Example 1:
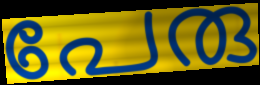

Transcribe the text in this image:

പേരു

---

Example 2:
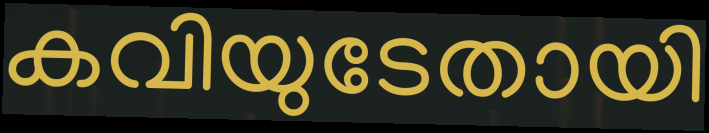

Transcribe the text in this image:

കവിയുടേതായി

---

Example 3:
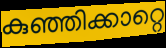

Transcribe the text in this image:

കുഞ്ഞിക്കാറ്റെ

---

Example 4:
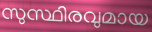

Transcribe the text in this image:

സുസ്ഥിരവുമായ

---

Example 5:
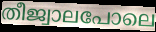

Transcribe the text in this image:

തീജ്വാലപോലെ